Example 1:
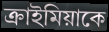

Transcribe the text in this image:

ক্রাইমিয়াকে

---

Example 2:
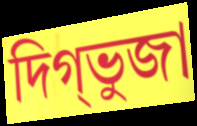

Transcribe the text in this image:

দিগ্ভুজা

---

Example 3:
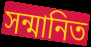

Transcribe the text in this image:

সন্মানিত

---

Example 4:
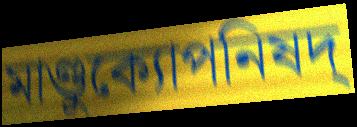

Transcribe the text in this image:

মাণ্ডুক্যোপনিষদ্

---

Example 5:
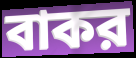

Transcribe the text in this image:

বাকর